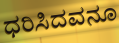
ಧರಿಸಿದವನೂ